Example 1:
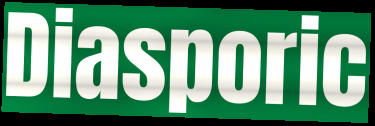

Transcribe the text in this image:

Diasporic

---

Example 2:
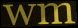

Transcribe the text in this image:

wm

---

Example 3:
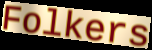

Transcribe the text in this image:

Folkers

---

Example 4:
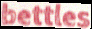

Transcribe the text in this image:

bettles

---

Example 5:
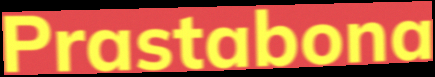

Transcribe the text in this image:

Prastabona